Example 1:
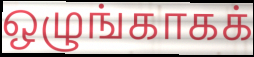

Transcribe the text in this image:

ஒழுங்காகக்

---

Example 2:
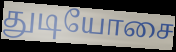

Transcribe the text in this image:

துடியோசை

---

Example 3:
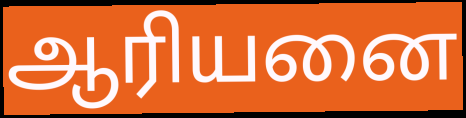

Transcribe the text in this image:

ஆரியனை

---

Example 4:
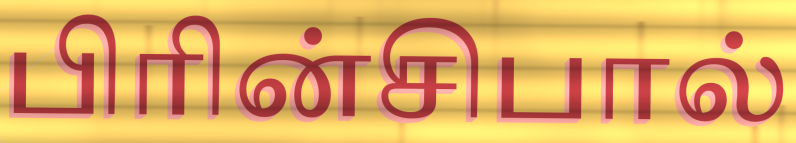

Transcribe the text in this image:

பிரின்சிபால்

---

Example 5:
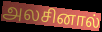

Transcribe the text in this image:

அலசினால்